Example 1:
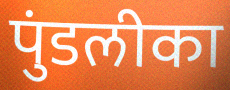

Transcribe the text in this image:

पुंडलीका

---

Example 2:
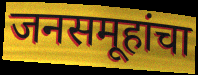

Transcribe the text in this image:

जनसमूहांचा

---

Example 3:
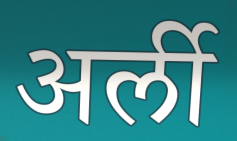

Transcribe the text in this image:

अर्ली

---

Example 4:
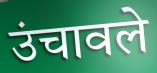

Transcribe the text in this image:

उंचावले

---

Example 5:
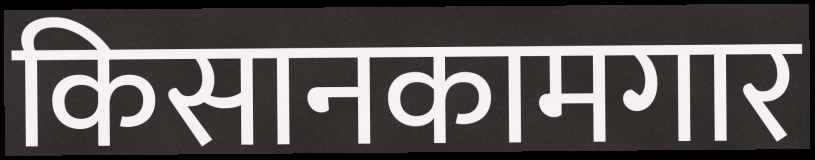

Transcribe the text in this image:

किसानकामगार